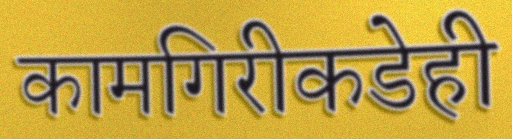
कामगिरीकडेही